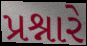
પ્રશ્નારે